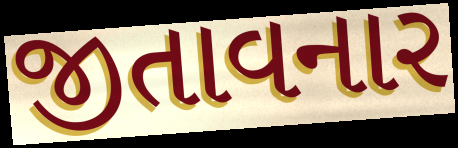
જીતાવનાર